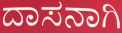
ದಾಸನಾಗಿ